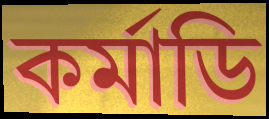
কর্মাডি